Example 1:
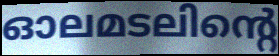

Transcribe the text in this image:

ഓലമടലിന്റെ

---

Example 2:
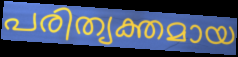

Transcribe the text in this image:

പരിത്യക്തമായ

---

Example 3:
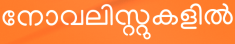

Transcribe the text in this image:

നോവലിസ്റ്റുകളിൽ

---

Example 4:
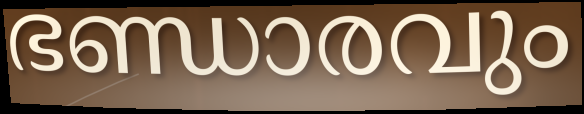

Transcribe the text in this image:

ഭണ്ഡാരവും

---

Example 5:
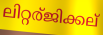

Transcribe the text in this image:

ലിറ്റര്ജിക്കല്